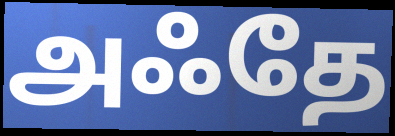
அஃதே